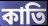
কাতি